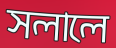
সলালে